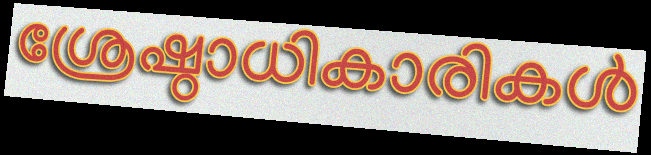
ശ്രേഷ്ഠാധികാരികൾ